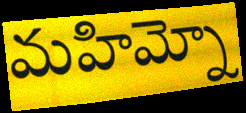
మహిమ్నో